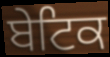
ਬੇਟਿਕ